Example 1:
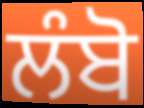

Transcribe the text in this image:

ਲੰਬੋ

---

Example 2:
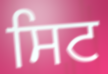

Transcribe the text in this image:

ਸਿਟ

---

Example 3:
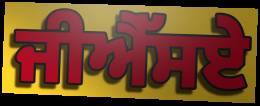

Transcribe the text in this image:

ਜੀਐੱਸਏ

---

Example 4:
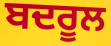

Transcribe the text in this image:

ਬਦਰੂਲ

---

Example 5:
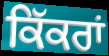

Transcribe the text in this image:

ਕਿੱਕਰਾਂ